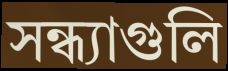
সন্ধ্যাগুলি